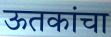
ऊतकांचा